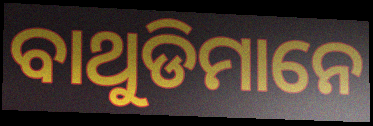
ବାଥୁଡିମାନେ